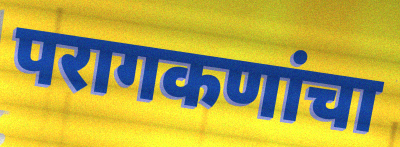
परागकणांचा